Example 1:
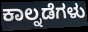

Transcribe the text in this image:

ಕಾಲ್ನಡೆಗಳು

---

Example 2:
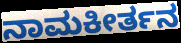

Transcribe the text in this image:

ನಾಮಕೀರ್ತನ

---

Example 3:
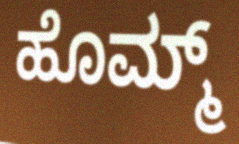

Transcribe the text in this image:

ಹೊಮ್ಮ್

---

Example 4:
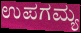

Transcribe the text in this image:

ಉಪಗಮ್ಯ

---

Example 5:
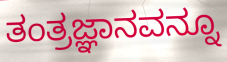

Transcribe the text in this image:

ತಂತ್ರಜ್ಞಾನವನ್ನೂ